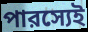
পারস্যেই